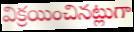
విక్రయించినట్లుగా